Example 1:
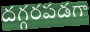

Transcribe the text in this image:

దగ్గరపడగా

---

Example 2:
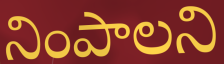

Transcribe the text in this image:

నింపాలని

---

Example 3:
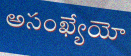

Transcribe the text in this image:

అసంఖ్యేయో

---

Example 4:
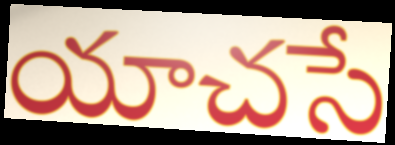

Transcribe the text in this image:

యాచసే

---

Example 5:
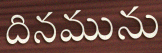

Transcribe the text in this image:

దినమును